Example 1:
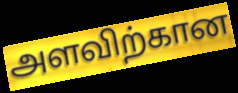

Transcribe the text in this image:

அளவிற்கான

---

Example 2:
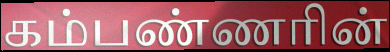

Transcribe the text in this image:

கம்பண்ணரின்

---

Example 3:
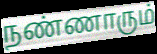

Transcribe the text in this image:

நண்ணாரும்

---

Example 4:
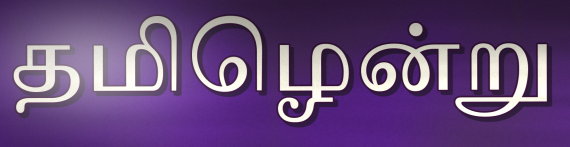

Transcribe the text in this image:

தமிழென்று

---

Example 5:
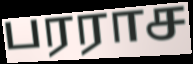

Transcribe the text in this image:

பரராச